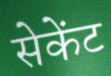
सेकेंट